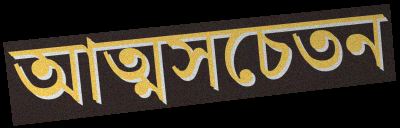
আত্মসচেতন